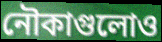
নৌকাগুলোও